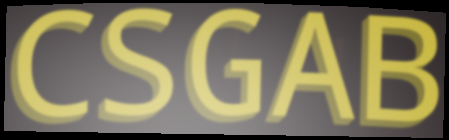
CSGAB